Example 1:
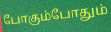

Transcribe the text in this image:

போகும்போதும்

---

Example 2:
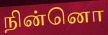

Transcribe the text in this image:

நின்னொ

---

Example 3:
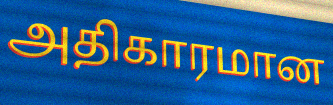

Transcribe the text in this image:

அதிகாரமான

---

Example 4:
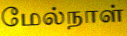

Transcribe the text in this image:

மேல்நாள்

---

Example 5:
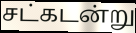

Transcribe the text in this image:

சட்கடன்று